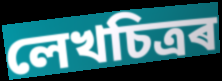
লেখচিত্ৰৰ